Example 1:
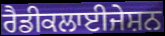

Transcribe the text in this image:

ਰੈਡੀਕਲਾਈਜੇਸ਼ਨ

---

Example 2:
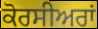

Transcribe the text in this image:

ਕੋਰਸੀਅਰਾਂ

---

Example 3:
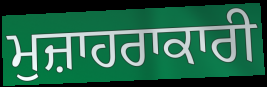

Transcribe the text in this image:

ਮੁਜ਼ਾਹਰਾਕਾਰੀ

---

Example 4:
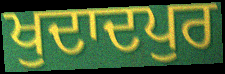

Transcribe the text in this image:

ਖੁਦਾਦਪੁਰ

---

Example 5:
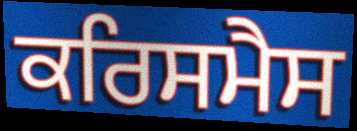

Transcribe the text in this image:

ਕਰਿਸਮੈਸ